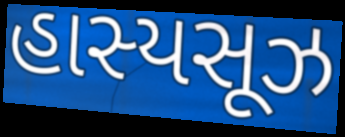
હાસ્યસૂઝ